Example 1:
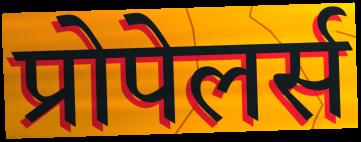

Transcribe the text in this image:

प्रोपेलर्स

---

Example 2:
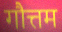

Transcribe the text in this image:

गौत्तम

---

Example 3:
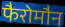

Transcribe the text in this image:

फैरोमौन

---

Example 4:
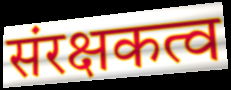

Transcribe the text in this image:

संरक्षकत्व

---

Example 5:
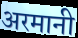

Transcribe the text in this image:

अरमानी